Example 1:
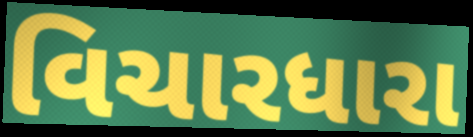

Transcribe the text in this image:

વિચારધારા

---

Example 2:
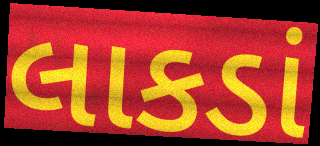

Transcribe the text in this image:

લાકડાં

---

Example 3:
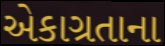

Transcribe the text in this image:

એકાગ્રતાના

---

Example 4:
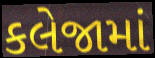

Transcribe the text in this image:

કલેજામાં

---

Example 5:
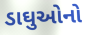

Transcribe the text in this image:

ડાઘુઓનો